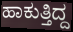
ಹಾಕುತ್ತಿದ್ದ